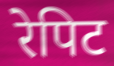
रेपिट